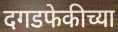
दगडफेकीच्या